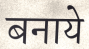
बनाये